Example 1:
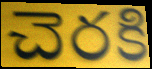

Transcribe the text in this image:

చెరకి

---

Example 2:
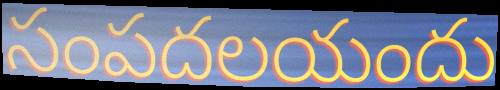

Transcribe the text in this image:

సంపదలయందు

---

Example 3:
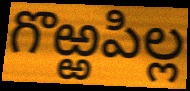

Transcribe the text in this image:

గొఱ్ఱపిల్ల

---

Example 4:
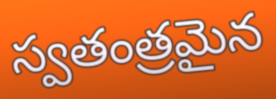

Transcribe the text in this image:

స్వతంత్రమైన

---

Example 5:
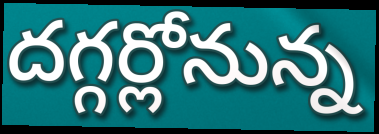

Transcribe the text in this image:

దగ్గర్లోనున్న